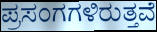
ಪ್ರಸಂಗಗಳಿರುತ್ತವೆ